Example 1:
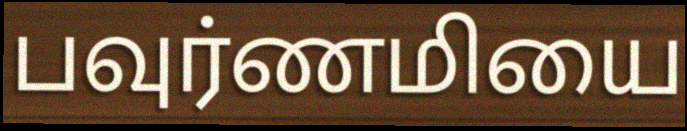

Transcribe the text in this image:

பவுர்ணமியை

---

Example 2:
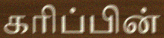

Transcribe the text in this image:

கரிப்பின்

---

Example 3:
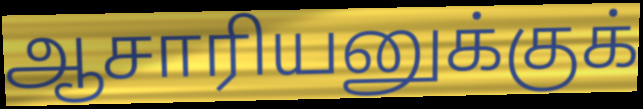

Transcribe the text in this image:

ஆசாரியனுக்குக்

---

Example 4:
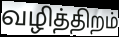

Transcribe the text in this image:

வழித்திறம்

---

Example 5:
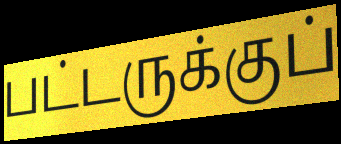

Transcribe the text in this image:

பட்டருக்குப்